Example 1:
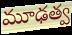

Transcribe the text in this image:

మూఢత్వ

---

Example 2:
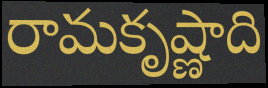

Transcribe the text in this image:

రామకృష్ణాది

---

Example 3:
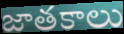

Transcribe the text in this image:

జాతకాలు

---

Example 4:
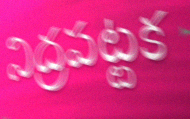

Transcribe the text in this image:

నిద్రపట్టక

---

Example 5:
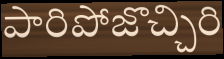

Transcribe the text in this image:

పారిపోజొచ్చిరి